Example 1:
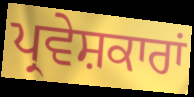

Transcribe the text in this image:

ਪ੍ਰਵੇਸ਼ਕਾਰਾਂ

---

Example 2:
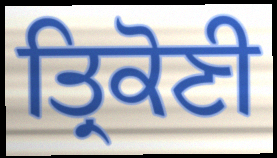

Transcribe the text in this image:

ਤ੍ਰਿਕੋਣੀ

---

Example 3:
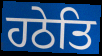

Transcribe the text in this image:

ਹਠੇਤਿ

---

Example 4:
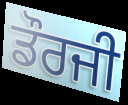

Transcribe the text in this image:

ਡੌਰਜੀ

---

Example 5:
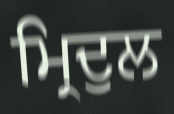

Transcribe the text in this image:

ਮ੍ਰਿਦੁਲ